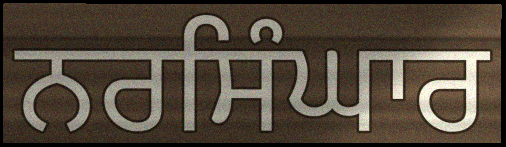
ਨਰਸਿੰਘਾਰ